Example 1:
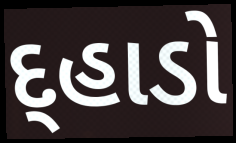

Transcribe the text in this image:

દ્હાડો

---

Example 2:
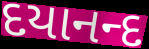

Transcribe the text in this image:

દયાનન્દ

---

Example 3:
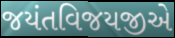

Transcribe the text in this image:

જયંતવિજયજીએ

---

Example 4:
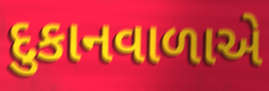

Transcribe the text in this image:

દુકાનવાળાએ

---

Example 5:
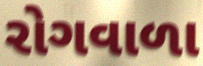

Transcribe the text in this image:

રોગવાળા